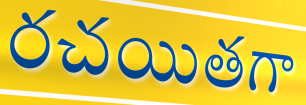
రచయితగా